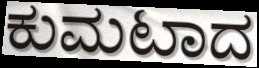
ಕುಮಟಾದ